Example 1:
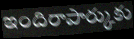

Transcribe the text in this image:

ఇందిరాపార్కుకు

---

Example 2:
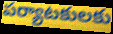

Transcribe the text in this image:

పర్యాటకులకు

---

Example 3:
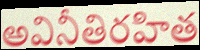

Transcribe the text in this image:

అవినీతిరహిత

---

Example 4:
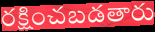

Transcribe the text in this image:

రక్షించబడతారు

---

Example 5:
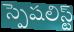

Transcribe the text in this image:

స్పెషలిస్ట్